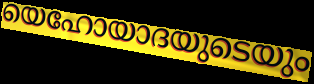
യെഹോയാദയുടെയും